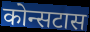
कोन्सटास